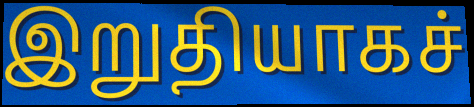
இறுதியாகச்